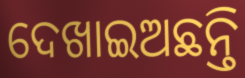
ଦେଖାଇଅଛନ୍ତି